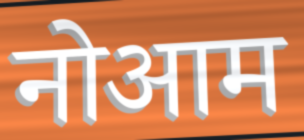
नोआम